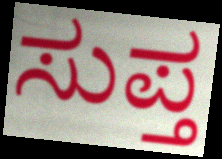
ಸುಪ್ತ